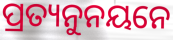
ପ୍ରତ୍ୟନୁନୟନେ